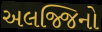
અલજ્જિનો